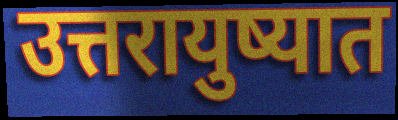
उत्तरायुष्यात